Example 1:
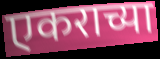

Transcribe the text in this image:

एकराच्या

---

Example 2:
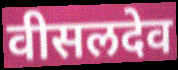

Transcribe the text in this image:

वीसलदेव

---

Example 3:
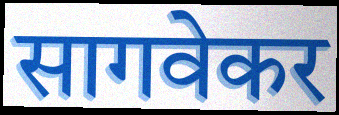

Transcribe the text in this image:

सागवेकर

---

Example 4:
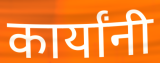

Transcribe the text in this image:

कार्यांनी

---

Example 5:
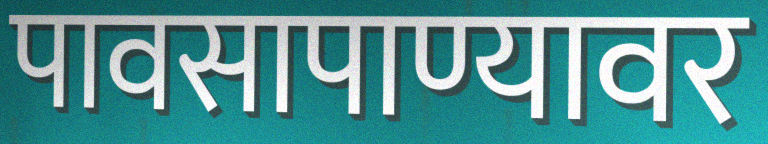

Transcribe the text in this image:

पावसापाण्यावर